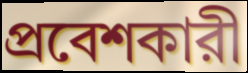
প্রবেশকারী